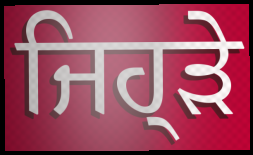
ਜਿਹ੍ੜੇ